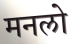
मनलो